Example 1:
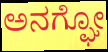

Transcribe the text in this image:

ಅನಗ್ಘೋ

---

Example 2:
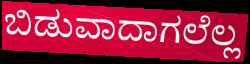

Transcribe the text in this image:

ಬಿಡುವಾದಾಗಲೆಲ್ಲ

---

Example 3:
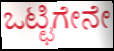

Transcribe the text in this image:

ಒಟ್ಟಿಗೇನೇ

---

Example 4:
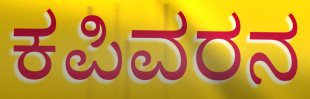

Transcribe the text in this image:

ಕಪಿವರನ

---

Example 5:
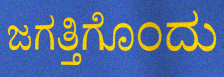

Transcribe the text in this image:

ಜಗತ್ತಿಗೊಂದು